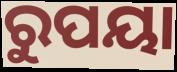
ରୁପୟା